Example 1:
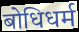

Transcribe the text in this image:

बोधिधर्म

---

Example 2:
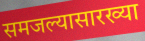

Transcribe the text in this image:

समजल्यासारख्या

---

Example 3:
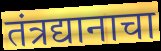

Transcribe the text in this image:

तंत्रद्यानाचा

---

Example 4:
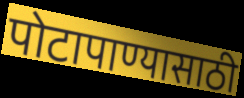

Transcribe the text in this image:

पोटापाण्यासाठी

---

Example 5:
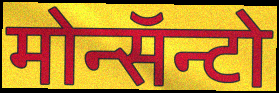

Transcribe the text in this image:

मोन्सॅन्टो